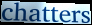
chatters